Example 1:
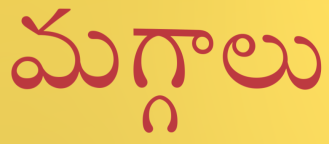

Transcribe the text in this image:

మగ్గాలు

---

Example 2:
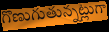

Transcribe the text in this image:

గొణుగుతున్నట్లుగా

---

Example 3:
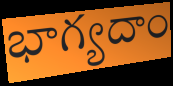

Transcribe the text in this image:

భాగ్యదాం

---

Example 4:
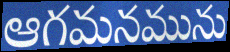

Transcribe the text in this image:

ఆగమనమును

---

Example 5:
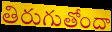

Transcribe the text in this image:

తిరుగుతోందా